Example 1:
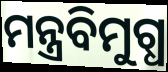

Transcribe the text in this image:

ମନ୍ତ୍ରବିମୁଗ୍ଧ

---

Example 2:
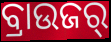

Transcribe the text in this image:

ବ୍ରାଉଜର୍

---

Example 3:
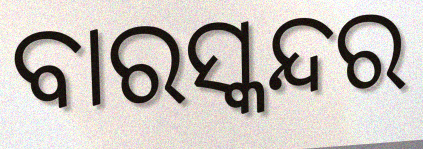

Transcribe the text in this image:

ବାରସ୍କନ୍ଦର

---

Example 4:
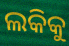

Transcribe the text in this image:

ଲକିକୁ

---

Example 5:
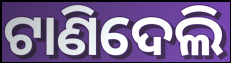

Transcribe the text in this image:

ଟାଣିଦେଲି